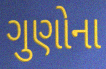
ગુણોના